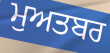
ਮੁਅਤਬਰ